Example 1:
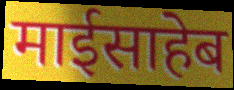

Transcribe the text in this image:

माईसाहेब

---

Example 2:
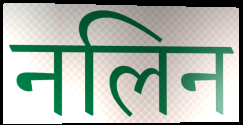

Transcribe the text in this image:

नलिन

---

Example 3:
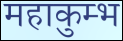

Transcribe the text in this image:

महाकुम्भ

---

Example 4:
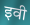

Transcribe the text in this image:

इवी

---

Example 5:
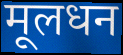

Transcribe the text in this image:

मूलधन